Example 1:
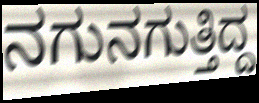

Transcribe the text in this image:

ನಗುನಗುತ್ತಿದ್ದ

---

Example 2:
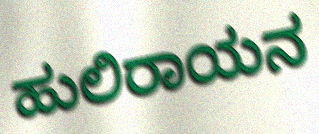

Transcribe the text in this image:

ಹುಲಿರಾಯನ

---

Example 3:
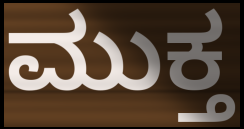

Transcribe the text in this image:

ಮುಕ್ತ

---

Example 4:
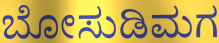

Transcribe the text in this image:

ಬೋಸುಡಿಮಗ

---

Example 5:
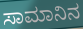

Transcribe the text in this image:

ಸಾಮಾನಿನ